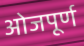
ओजपूर्ण